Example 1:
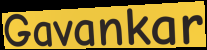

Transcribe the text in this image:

Gavankar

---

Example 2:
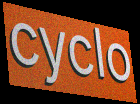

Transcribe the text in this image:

cyclo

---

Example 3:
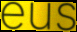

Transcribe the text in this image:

eus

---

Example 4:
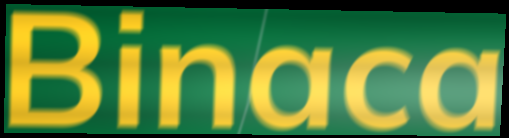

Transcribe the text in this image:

Binaca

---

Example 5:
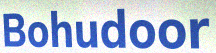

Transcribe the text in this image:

Bohudoor